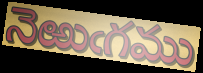
నెఱుఁగము